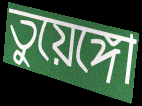
তুয়েঙ্গো